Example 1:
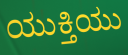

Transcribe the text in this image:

ಯುಕ್ತಿಯು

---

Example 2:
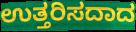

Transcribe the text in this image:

ಉತ್ತರಿಸದಾದ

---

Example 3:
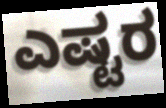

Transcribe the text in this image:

ಎಷ್ಟರ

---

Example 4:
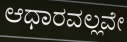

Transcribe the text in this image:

ಆಧಾರವಲ್ಲವೇ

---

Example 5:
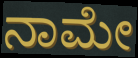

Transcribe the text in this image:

ನಾಮೇ